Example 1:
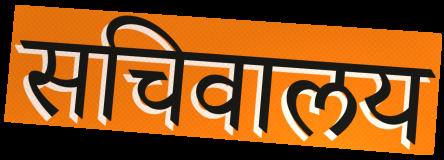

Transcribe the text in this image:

सचिवालय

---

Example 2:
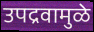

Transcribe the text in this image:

उपद्रवामुळे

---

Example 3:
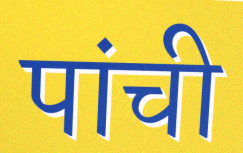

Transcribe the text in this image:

पांची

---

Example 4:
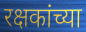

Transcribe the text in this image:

रक्षकांच्या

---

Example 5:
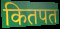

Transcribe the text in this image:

कितपत